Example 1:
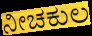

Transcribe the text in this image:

ನೀಚಕುಲ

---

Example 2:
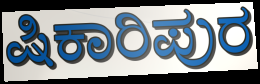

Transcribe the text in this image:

ಷಿಕಾರಿಪುರ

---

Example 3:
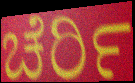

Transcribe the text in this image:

ಚೆರ್ರಿ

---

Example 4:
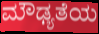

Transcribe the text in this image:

ಮೌಢ್ಯತೆಯ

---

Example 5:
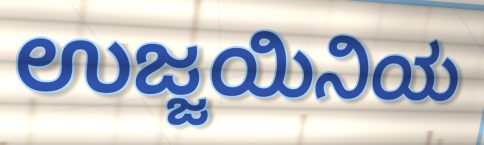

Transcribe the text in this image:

ಉಜ್ಜಯಿನಿಯ